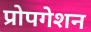
प्रोपगेशन